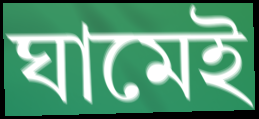
ঘামেই